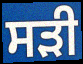
ਸੜੀ